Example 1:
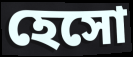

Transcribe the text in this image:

হেসো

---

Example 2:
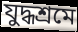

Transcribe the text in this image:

যুদ্ধশ্রমে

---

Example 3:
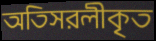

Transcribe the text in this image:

অতিসরলীকৃত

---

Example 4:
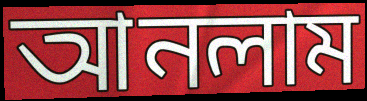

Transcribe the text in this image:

আনলাম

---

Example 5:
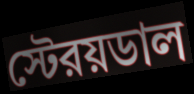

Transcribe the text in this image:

স্টেরয়ডাল